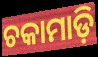
ଚକାମାଡ଼ି